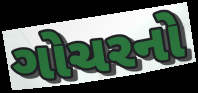
ગોચરનો